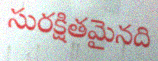
సురక్షితమైనది